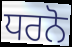
ਧਰਨੋ